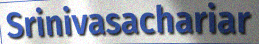
Srinivasachariar